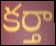
కర్తా